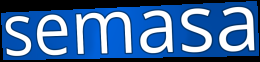
semasa